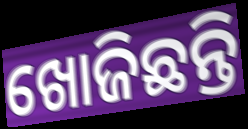
ଖୋଜିଛନ୍ତି